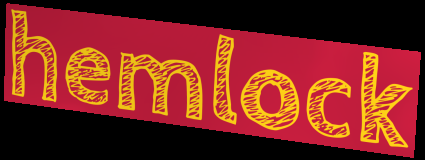
hemlock